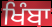
ਖਿੰਬਾ